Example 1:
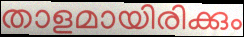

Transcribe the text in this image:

താളമായിരിക്കും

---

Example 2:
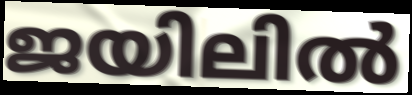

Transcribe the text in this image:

ജയിലിൽ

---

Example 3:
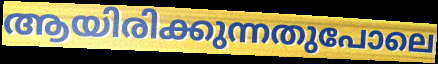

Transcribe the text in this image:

ആയിരിക്കുന്നതുപോലെ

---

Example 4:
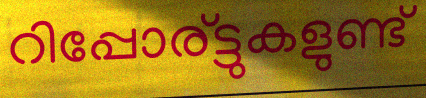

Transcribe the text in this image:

റിപ്പോര്ട്ടുകളുണ്ട്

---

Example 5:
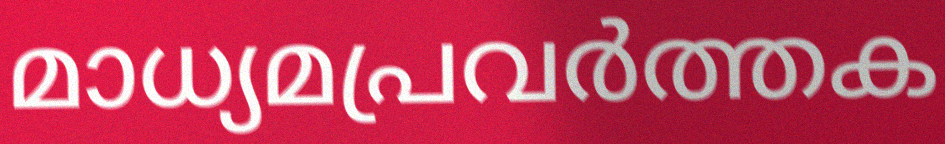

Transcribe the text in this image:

മാധ്യമപ്രവർത്തക